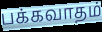
பக்கவாதம்